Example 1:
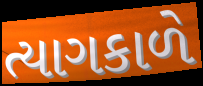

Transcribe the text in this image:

ત્યાગકાળે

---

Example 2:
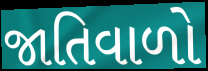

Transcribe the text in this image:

જાતિવાળો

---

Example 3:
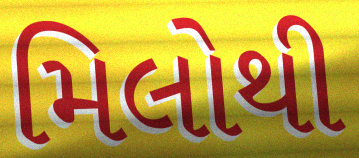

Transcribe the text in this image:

મિલોથી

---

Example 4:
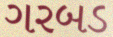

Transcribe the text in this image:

ગરબડ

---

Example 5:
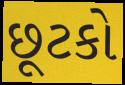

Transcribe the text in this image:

છૂટકો